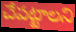
చేపట్టాలని